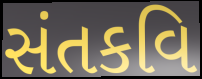
સંતકવિ